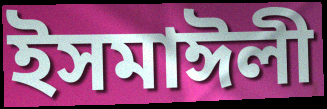
ইসমাঈলী